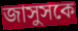
জাসুসকে